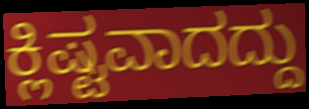
ಕ್ಲಿಷ್ಟವಾದದ್ದು